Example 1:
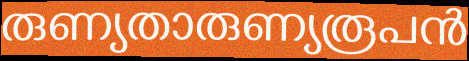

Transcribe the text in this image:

രുണ്യതാരുണ്യരൂപൻ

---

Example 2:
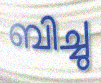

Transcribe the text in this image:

ബിച്ചു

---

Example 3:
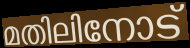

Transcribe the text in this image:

മതിലിനോട്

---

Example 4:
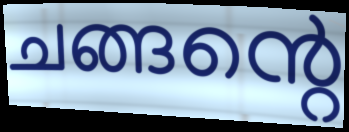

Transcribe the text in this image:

ചങ്ങന്റെ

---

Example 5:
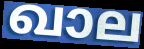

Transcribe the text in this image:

ഖാല